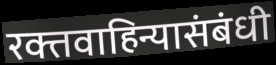
रक्तवाहिन्यासंबंधी